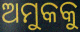
ଅମୁକକୁ